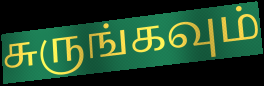
சுருங்கவும்